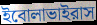
ইবোলাভাইরাস